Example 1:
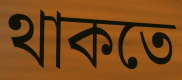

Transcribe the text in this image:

থাকতে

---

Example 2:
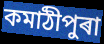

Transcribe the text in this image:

কমাঠীপুৰা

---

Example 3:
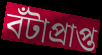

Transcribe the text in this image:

বঁটাপ্ৰাপ্ত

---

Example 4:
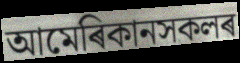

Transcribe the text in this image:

আমেৰিকানসকলৰ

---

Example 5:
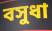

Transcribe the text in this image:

বসুধা